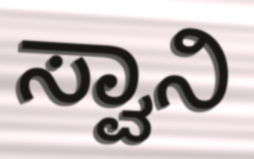
ಸ್ವಾನಿ